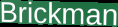
Brickman